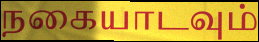
நகையாடவும்